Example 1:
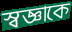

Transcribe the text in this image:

স্বজ্ঞাকে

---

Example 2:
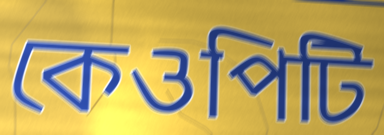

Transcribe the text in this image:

কেওপিটি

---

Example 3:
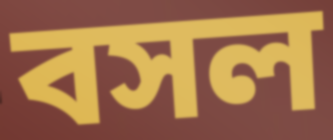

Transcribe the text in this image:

বসল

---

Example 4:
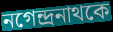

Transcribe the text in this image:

নগেন্দ্রনাথকে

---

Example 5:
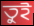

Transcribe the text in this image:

তুই